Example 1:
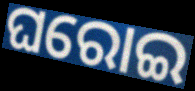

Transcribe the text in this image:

ଘରୋଇ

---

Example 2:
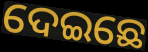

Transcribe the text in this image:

ଦେଇଛେ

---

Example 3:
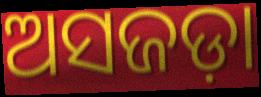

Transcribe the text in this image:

ଅସଜଡ଼ା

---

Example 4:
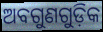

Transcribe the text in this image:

ଅବଗୁଣଗୁଡ଼ିକ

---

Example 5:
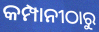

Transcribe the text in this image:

କମ୍ପାନୀଠାରୁ